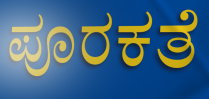
ಪೂರಕತೆ